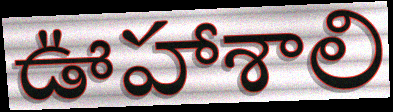
ఊహాశాలి